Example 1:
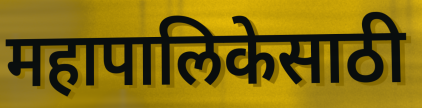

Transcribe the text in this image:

महापालिकेसाठी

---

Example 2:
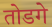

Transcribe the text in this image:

तोडगे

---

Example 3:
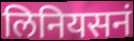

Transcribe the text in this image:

लिनियसनं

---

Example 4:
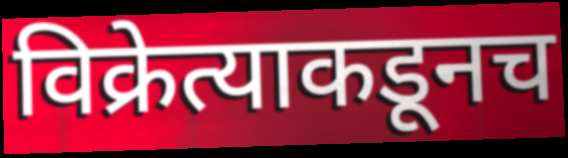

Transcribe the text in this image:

विक्रेत्याकडूनच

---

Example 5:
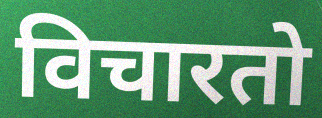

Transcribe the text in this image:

विचारतो